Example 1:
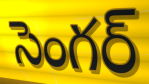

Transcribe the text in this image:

సెంగర్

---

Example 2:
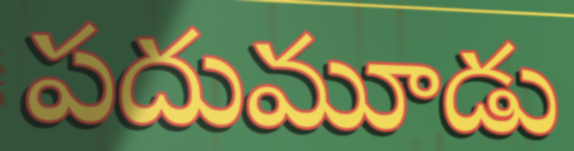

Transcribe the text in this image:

పదుమూడు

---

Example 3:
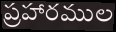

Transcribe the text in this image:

ప్రహారముల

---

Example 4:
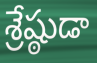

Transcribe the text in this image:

శ్రేష్ఠుడా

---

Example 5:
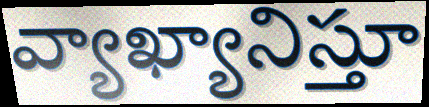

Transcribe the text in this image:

వ్యాఖ్యానిస్తూ